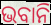
ଭବାନି